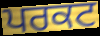
ਪਰਕਟ